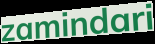
zamindari